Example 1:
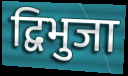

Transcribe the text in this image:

द्विभुजा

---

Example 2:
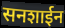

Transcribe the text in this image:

सनशाईन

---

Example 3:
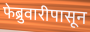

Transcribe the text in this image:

फेब्रुवारीपासून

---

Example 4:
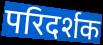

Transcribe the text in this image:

परिदर्शक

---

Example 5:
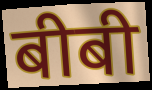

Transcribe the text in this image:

बीबी